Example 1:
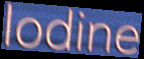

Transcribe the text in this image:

lodine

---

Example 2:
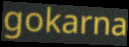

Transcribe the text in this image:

gokarna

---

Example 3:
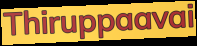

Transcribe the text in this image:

Thiruppaavai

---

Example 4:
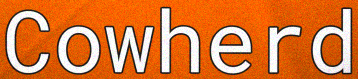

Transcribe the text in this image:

Cowherd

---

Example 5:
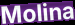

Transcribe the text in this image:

Molina